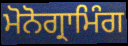
ਮੋਨੋਗ੍ਰਾਮਿੰਗ